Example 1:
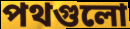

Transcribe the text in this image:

পথগুলো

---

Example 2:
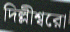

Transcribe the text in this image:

দিল্লীশ্বরো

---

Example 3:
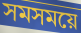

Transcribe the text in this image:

সমসময়ে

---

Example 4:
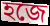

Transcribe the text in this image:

হজে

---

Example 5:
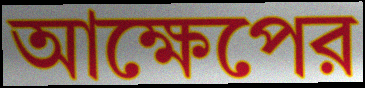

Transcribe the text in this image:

আক্ষেপের